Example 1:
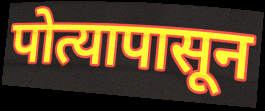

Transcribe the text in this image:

पोत्यापासून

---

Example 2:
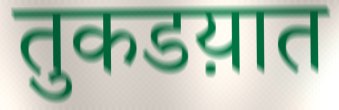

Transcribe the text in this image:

तुकडय़ात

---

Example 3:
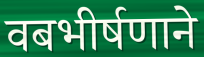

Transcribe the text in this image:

वबभीर्षणाने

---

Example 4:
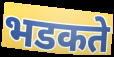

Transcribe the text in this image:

भडकते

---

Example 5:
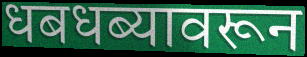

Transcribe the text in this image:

धबधब्यावरून